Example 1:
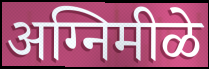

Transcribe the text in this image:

अग्निमीळे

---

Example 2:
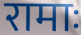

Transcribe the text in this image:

रामाः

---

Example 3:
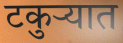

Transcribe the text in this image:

टकुर्‍यात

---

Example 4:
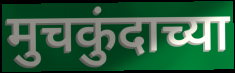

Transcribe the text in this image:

मुचकुंदाच्या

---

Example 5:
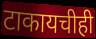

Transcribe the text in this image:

टाकायचीही